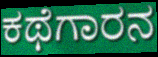
ಕಥೆಗಾರನ